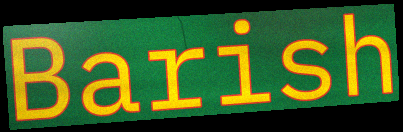
Barish